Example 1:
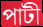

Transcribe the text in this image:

পাটী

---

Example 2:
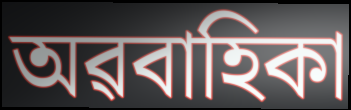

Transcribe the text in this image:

অৱবাহিকা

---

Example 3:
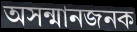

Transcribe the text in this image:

অসন্মানজনক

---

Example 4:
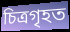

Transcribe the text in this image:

চিত্ৰগৃহত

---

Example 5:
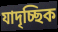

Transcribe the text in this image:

যাদৃচ্ছিক